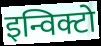
इन्विक्टो